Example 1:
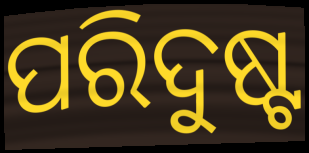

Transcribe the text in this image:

ପରିଦୁଷ୍ଟ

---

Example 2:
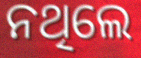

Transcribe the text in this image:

ନଥିଲେ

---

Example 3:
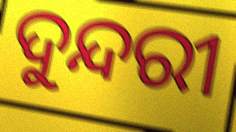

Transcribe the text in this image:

ଦୁନ୍ଦରୀ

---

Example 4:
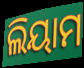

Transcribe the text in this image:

ଲିୟାମ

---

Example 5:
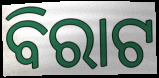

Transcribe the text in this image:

ବିରାଟ